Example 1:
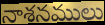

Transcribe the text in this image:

నాశనములు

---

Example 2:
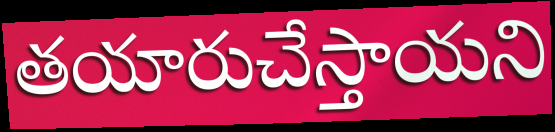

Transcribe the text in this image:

తయారుచేస్తాయని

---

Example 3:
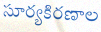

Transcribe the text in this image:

సూర్యకిరణాల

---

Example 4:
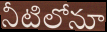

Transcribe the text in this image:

నీటిలోనూ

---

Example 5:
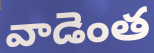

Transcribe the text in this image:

వాడెంత